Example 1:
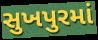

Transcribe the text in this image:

સુખપુરમાં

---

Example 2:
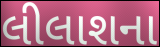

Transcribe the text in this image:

લીલાશના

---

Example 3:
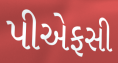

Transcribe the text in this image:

પીએફસી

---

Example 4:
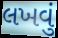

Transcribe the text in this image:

લખવું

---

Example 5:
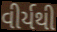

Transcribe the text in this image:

વીર્યથી